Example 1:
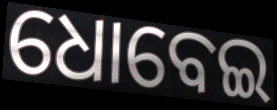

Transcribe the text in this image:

ଧୋବେଇ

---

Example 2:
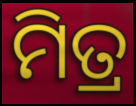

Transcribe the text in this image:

ମିତ୍ର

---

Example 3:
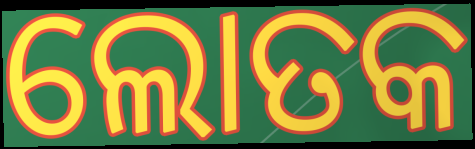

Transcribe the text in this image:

ଲୋତକ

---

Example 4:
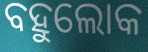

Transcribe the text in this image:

ବହୁଲୋକ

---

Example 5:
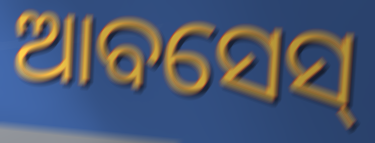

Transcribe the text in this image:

ଆବସେସ୍